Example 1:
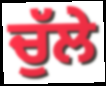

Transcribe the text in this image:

ਚੁੱਲੇ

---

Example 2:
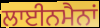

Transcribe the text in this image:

ਲਾਈਨਮੈਨਾਂ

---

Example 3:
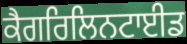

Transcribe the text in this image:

ਕੈਗਰਿਲਿਨਟਾਈਡ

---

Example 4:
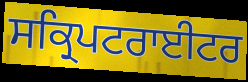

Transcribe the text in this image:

ਸਕ੍ਰਿਪਟਰਾਈਟਰ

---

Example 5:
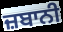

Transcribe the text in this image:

ਜ਼ਬਾਨੀ